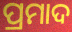
ପ୍ରମାଦ